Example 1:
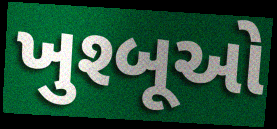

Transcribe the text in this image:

ખુશ્બૂઓ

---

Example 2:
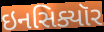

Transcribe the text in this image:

ઇનસિક્યૉર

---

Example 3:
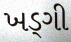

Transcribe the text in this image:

ખડ્ગી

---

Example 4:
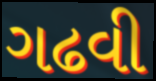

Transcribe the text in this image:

ગઢવી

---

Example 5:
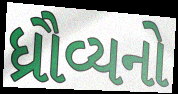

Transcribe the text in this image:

ધ્રૌવ્યનો